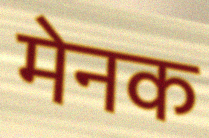
मेनक